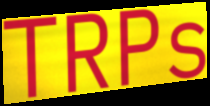
TRPs